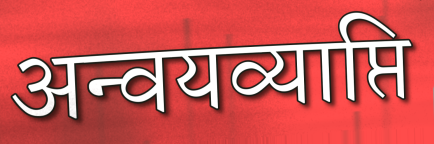
अन्वयव्याप्ति